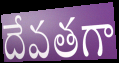
దేవతగా